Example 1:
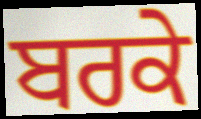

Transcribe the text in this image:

ਬਰਕੇ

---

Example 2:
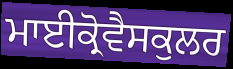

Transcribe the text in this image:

ਮਾਈਕ੍ਰੋਵੈਸਕੁਲਰ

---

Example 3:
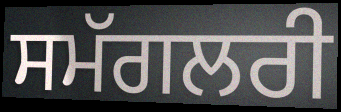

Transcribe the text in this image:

ਸਮੱਗਲਰੀ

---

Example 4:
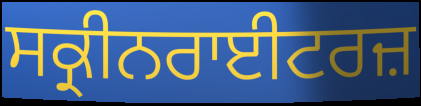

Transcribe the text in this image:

ਸਕ੍ਰੀਨਰਾਈਟਰਜ਼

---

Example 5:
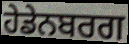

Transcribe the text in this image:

ਹੇਡੇਨਬਰਗ